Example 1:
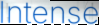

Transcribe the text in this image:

Intense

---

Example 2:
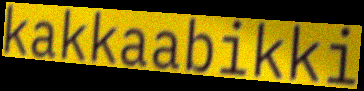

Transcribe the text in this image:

kakkaabikki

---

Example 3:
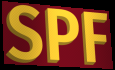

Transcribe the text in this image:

SPF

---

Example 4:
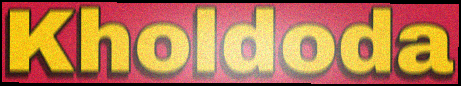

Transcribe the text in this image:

Kholdoda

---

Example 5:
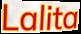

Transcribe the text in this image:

Lalita